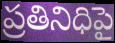
ప్రతినిధిపై